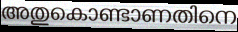
അതുകൊണ്ടാണതിനെ